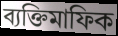
ব্যক্তিমাফিক